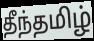
தீந்தமிழ்